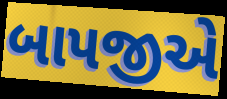
બાપજીએ